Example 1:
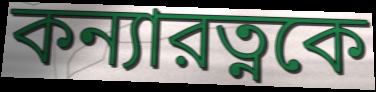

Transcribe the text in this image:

কন্যারত্নকে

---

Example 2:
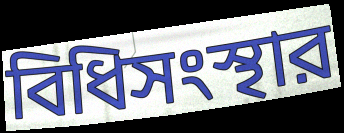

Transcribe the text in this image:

বিধিসংস্থার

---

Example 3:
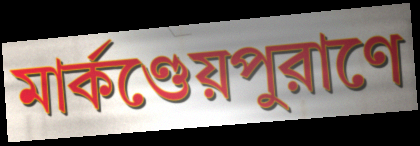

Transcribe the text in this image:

মার্কণ্ডেয়পুরাণে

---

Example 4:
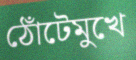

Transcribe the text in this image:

ঠোঁটেমুখে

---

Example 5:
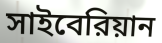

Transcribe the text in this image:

সাইবেরিয়ান